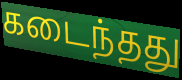
கடைந்தது